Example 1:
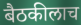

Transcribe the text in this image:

बैठकीलाच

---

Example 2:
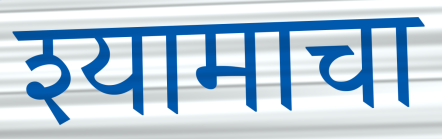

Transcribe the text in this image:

श्यामाचा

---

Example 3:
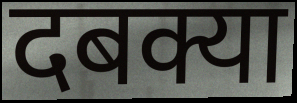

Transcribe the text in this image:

दबक्या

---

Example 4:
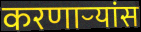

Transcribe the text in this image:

करणाऱ्यांस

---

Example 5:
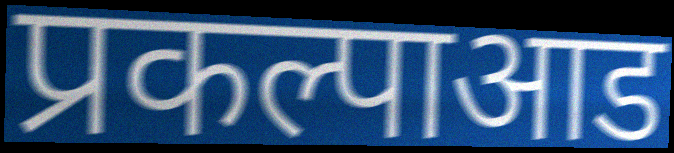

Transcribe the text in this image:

प्रकल्पाआड